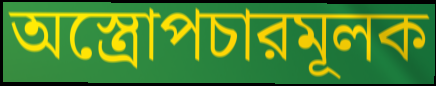
অস্ত্রোপচারমূলক